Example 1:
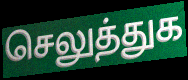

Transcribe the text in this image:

செலுத்துக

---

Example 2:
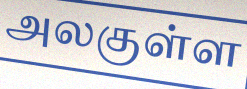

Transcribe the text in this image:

அலகுள்ள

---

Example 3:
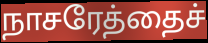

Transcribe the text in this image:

நாசரேத்தைச்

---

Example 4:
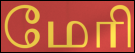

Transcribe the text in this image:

மேரி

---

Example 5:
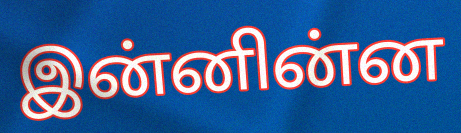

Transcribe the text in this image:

இன்னின்ன